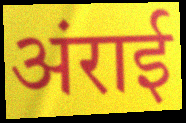
अंराई